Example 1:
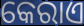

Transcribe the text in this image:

କେରାଏ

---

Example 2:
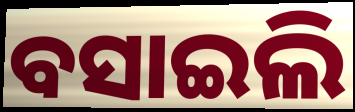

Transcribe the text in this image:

ବସାଇଲି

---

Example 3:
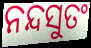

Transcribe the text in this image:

ନନ୍ଦସୁତଂ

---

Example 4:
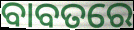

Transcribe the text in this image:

ବାବତରେ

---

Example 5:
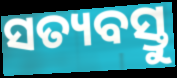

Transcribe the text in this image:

ସତ୍ୟବସ୍ତୁ